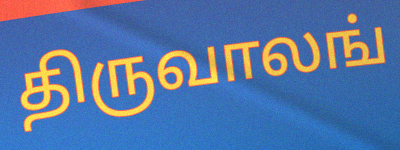
திருவாலங்